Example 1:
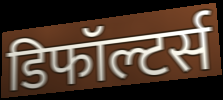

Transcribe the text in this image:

डिफॉल्टर्स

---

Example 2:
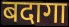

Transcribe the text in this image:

बदागा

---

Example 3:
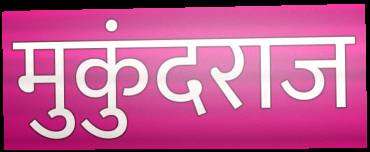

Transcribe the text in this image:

मुकुंदराज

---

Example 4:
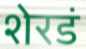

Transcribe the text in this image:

शेरडं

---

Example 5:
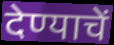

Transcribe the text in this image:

देण्याचें